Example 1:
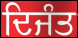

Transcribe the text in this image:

ਦਿਜੰਤ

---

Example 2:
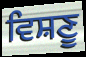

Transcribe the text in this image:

ਵਿਸ਼ਣੂ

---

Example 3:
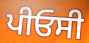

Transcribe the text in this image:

ਪੀਓਸੀ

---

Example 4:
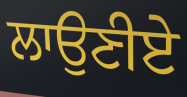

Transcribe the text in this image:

ਲਾਉਣੀਏ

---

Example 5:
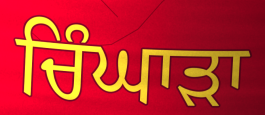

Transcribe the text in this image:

ਚਿੰਘਾੜਾ